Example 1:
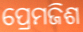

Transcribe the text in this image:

ପ୍ରେମଜିଶ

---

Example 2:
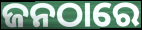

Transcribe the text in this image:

ଜନଠାରେ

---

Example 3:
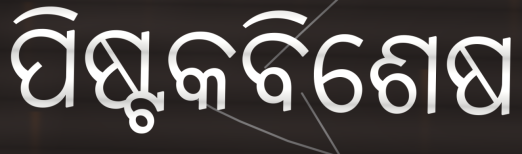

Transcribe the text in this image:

ପିଷ୍ଟକବିଶେଷ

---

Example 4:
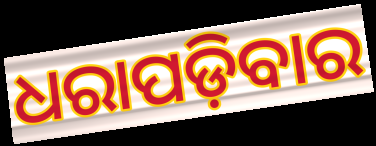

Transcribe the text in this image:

ଧରାପଡ଼ିବାର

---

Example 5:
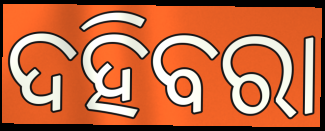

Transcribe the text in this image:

ଦହିବରା